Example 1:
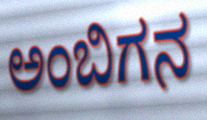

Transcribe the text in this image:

ಅಂಬಿಗನ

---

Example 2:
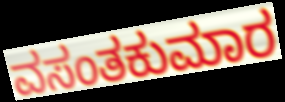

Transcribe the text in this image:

ವಸಂತಕುಮಾರ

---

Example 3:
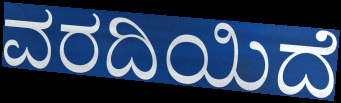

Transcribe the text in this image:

ವರದಿಯಿದೆ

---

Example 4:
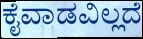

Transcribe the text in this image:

ಕೈವಾಡವಿಲ್ಲದೆ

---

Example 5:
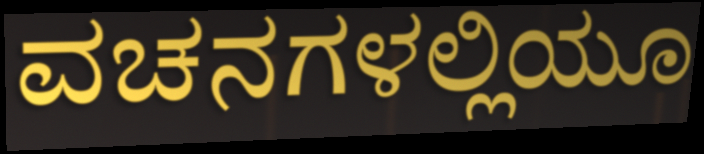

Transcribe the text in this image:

ವಚನಗಳಲ್ಲಿಯೂ